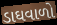
ડાઘવાળો